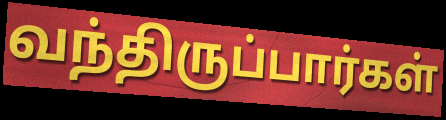
வந்திருப்பார்கள்